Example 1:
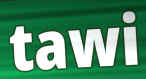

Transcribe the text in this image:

tawi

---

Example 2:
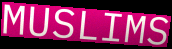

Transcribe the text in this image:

MUSLIMS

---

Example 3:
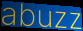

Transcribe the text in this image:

abuzz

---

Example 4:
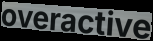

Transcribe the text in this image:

overactive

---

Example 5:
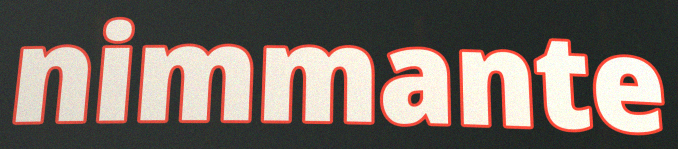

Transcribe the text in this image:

nimmante